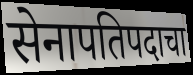
सेनापतिपदाचा